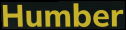
Humber